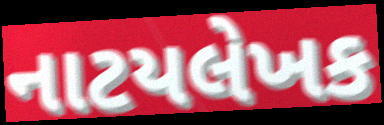
નાટયલેખક